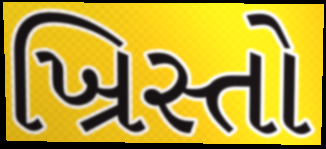
ખ્રિસ્તો